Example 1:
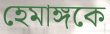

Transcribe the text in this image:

হেমাঙ্গকে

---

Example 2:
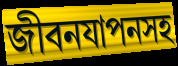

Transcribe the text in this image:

জীবনযাপনসহ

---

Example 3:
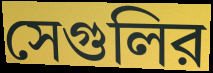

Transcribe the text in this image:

সেগুলির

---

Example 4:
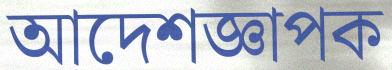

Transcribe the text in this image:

আদেশজ্ঞাপক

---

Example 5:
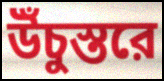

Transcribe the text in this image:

উঁচুস্তরে